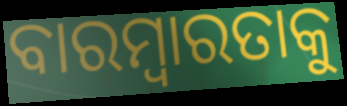
ବାରମ୍ବାରତାକୁ